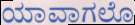
ಯಾವಾಗಲೊ